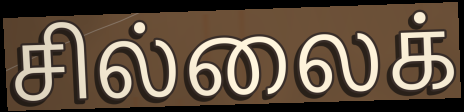
சில்லைக்